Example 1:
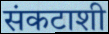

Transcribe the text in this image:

संकटाशी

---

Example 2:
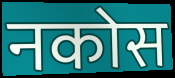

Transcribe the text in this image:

नकोस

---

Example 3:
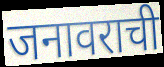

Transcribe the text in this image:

जनावराची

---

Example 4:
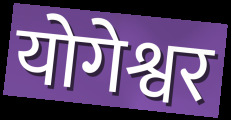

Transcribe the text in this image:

योगेश्वर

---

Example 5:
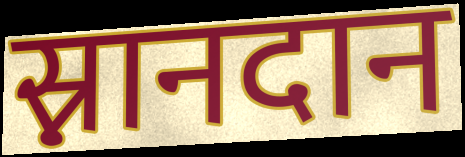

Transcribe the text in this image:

स्नानदान